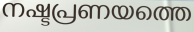
നഷ്ടപ്രണയത്തെ